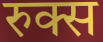
रुक्स